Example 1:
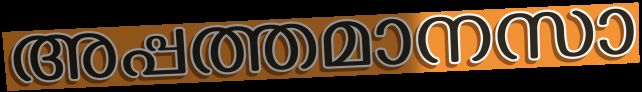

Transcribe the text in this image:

അപ്പത്തമാനസാ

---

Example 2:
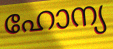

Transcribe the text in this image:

ഹോന്യ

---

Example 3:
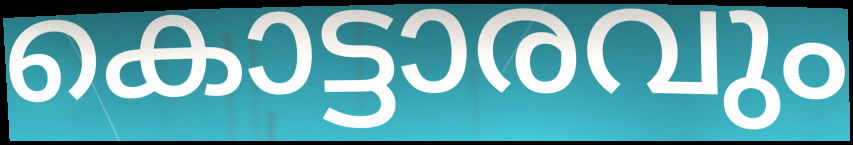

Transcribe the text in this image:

കൊട്ടാരവും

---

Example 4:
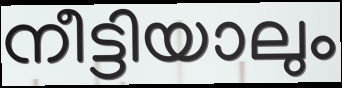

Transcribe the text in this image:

നീട്ടിയാലും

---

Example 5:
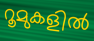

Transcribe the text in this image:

റൂമുകളിൽ